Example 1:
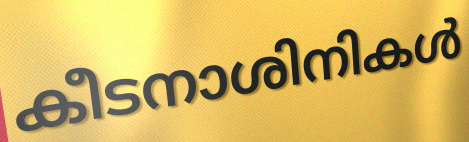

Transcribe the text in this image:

കീടനാശിനികൾ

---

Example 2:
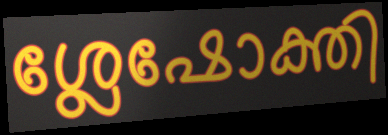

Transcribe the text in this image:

ശ്ലേഷോക്തി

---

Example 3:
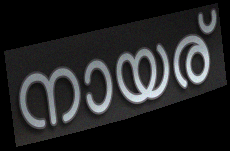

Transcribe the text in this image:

നായര്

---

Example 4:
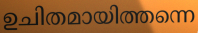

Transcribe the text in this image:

ഉചിതമായിത്തന്നെ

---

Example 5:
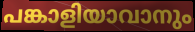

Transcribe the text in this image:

പങ്കാളിയാവാനും